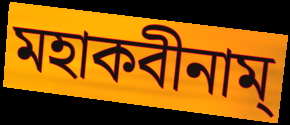
মহাকবীনাম্